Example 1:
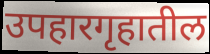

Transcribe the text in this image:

उपहारगृहातील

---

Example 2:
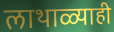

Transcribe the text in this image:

लाथाळ्याही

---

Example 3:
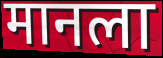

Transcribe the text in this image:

मानला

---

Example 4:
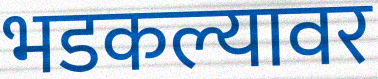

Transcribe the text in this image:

भडकल्यावर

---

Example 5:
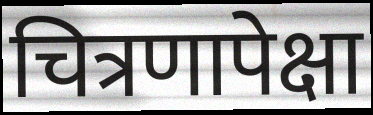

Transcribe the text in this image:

चित्रणापेक्षा